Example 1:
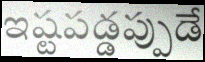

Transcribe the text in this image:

ఇష్టపడ్డప్పుడే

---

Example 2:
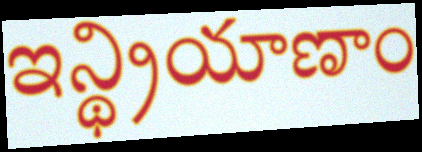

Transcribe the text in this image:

ఇన్థ్రియాణాం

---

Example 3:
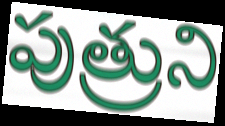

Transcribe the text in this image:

పుత్రుని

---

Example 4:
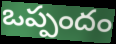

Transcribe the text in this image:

ఒప్పందం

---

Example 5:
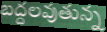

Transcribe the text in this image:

బద్దలవుతున్న